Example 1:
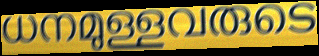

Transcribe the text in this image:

ധനമുള്ളവരുടെ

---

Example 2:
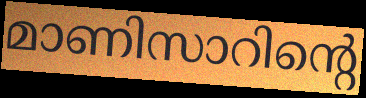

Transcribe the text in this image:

മാണിസാറിന്റെ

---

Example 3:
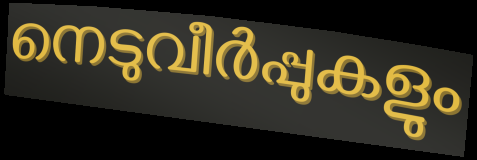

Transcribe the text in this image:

നെടുവീർപ്പുകളും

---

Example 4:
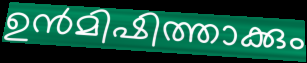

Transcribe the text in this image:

ഉൻമിഷിത്താക്കും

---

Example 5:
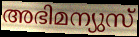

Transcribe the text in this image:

അഭിമന്യുസ്